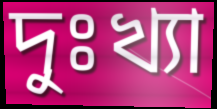
দুঃখ্যা